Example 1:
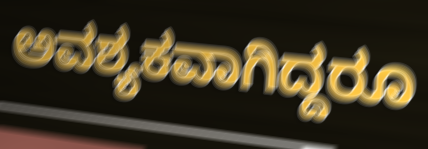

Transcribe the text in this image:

ಅವಶ್ಯಕವಾಗಿದ್ದರೂ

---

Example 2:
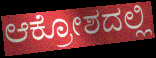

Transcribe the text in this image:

ಆಕ್ರೋಶದಲ್ಲಿ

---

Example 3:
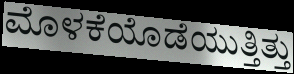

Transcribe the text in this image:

ಮೊಳಕೆಯೊಡೆಯುತ್ತಿತ್ತು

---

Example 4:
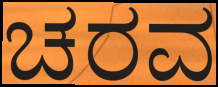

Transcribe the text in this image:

ಚರವ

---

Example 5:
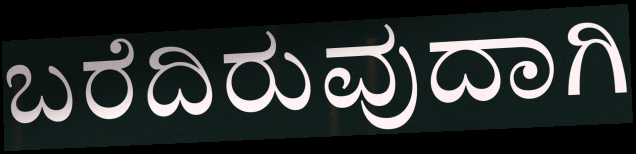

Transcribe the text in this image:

ಬರೆದಿರುವುದಾಗಿ